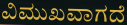
ವಿಮುಖವಾಗದೆ